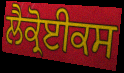
ਲੈਕ੍ਰੋਈਕਸ